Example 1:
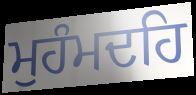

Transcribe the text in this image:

ਮੁਹੰਮਦਹਿ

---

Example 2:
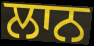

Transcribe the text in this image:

ਲਾਨ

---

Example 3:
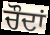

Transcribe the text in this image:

ਚੌਦਾਂ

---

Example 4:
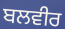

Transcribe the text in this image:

ਬਲਵੀਰ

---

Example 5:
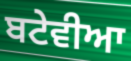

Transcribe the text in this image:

ਬਟੇਵੀਆ